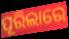
ପୂରିଲାରେ